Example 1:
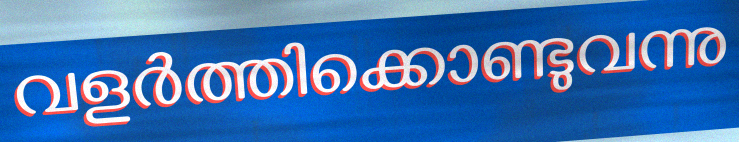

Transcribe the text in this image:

വളർത്തിക്കൊണ്ടുവന്നു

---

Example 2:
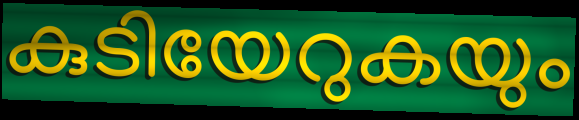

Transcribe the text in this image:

കുടിയേറുകയും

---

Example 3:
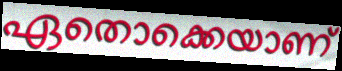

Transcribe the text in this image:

ഏതൊക്കെയാണ്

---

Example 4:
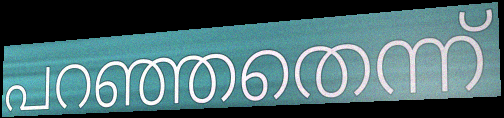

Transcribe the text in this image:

പറഞ്ഞതെന്ന്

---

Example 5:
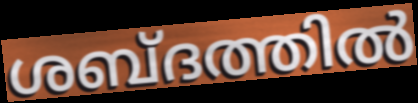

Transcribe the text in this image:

ശബ്ദത്തിൽ